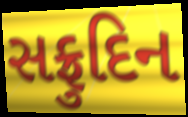
સફ્રુદિન